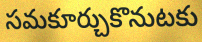
సమకూర్చుకొనుటకు